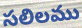
సలిలము